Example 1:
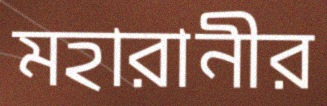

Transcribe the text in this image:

মহারানীর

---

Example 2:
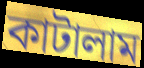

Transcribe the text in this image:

কাটালাম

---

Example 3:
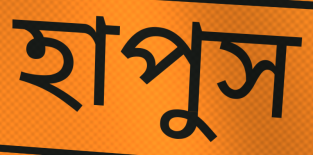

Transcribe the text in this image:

হাপুস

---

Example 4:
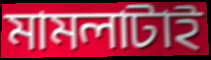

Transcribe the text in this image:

মামলাটাই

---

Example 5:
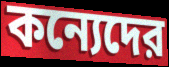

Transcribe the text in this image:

কন্যেদের